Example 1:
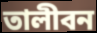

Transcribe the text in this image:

তালীবন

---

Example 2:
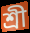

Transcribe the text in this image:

শ্রী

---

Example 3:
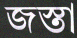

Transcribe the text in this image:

জস্তা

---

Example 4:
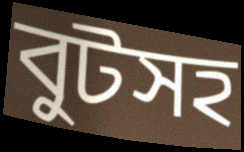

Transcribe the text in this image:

বুটসহ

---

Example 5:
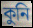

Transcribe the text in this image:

কুনি